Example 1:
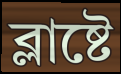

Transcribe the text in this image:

ব্লাষ্টে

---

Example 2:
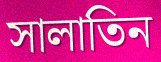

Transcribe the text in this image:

সালাতিন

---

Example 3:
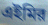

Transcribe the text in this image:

এইমির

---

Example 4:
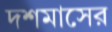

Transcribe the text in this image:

দশমাসের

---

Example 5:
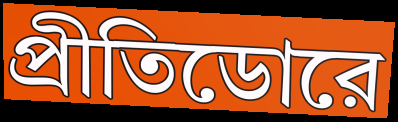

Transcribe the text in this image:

প্রীতিডোরে